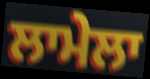
ਲਾਮੇਲਾ